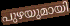
പുഴയുമായി